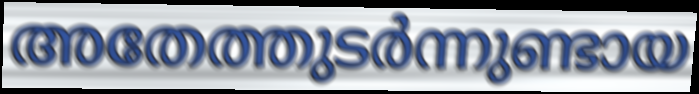
അതേത്തുടർന്നുണ്ടായ